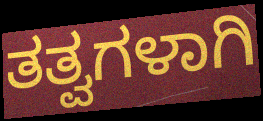
ತತ್ವಗಳಾಗಿ